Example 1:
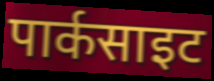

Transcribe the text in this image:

पार्कसाइट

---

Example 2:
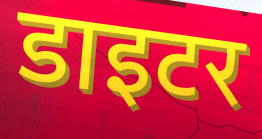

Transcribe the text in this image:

डाइटर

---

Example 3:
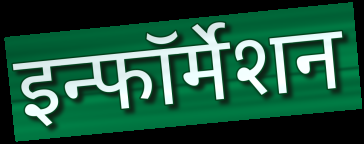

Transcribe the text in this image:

इन्फॉर्मेशन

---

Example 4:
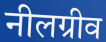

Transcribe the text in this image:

नीलग्रीव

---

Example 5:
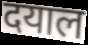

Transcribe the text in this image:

दयाल